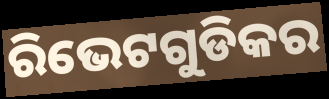
ରିଭେଟଗୁଡିକର